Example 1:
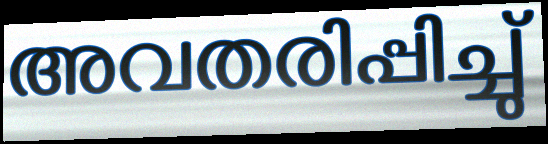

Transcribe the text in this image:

അവതരിപ്പിച്ചു്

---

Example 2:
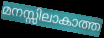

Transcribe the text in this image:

മനസ്സിലാകാത്ത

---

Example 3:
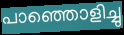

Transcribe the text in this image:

പാഞ്ഞൊളിച്ചു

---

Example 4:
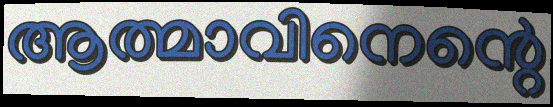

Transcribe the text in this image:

ആത്മാവിനെന്റെ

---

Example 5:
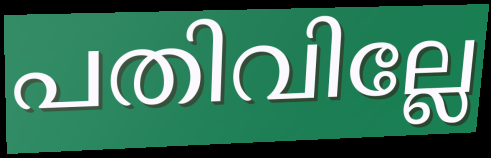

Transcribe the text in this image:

പതിവില്ലേ